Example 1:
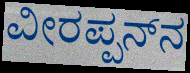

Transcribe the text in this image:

ವೀರಪ್ಪನ್‍ನ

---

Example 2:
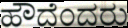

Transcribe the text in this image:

ಹೌದೆಂದರು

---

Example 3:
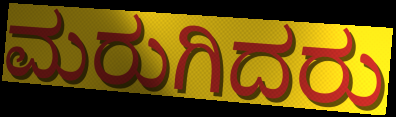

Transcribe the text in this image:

ಮರುಗಿದರು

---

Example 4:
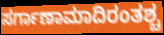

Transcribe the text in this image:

ಸರ್ಗಾಣಾಮಾದಿರಂತಶ್ಚ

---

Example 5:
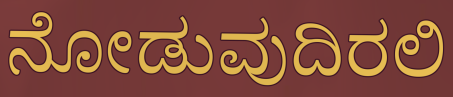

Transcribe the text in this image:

ನೋಡುವುದಿರಲಿ